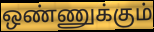
ஒண்ணுக்கும்